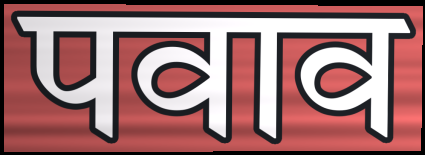
पवाव